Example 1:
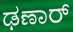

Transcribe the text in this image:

ಢಣಾರ್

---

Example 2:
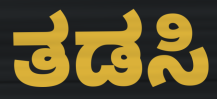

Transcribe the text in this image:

ತಡಸಿ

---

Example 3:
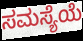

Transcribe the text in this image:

ಸಮಸ್ಯೆಯೆ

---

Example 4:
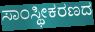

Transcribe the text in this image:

ಸಾಂಸ್ಥೀಕರಣದ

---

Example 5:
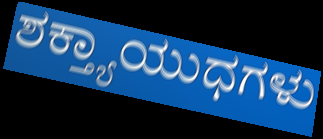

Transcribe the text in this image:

ಶಕ್ತ್ಯಾಯುಧಗಳು